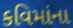
કવિમાંના